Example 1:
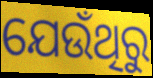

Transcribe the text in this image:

ଯେଉଁଥିରୁ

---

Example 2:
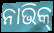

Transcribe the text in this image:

ନାଭିକ୍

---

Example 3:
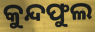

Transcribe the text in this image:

କୁନ୍ଦଫୁଲ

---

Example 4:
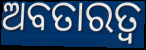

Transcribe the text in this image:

ଅବତାରତ୍ୱ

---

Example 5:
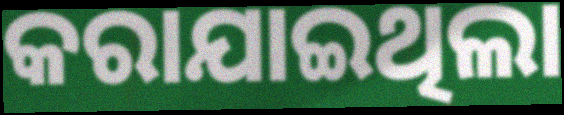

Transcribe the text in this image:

କରାଯାଇଥିଲା